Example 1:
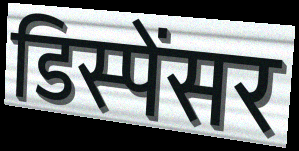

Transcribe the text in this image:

डिस्पेंसर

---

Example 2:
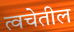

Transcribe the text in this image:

त्वचेतील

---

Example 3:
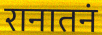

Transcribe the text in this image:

रानातनं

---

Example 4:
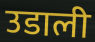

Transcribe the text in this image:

उडाली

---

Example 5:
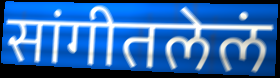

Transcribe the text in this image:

सांगीतलेलं